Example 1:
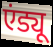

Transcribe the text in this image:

एंड्यू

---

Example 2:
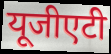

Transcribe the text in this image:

यूजीएटी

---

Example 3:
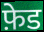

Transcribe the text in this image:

फ़ेड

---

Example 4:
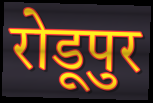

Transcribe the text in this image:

रोडूपुर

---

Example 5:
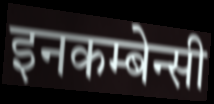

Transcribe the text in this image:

इनकम्बेन्सी